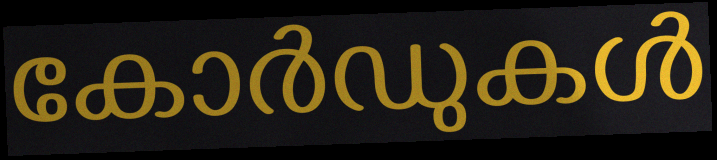
കോർഡുകൾ